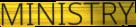
MINISTRY